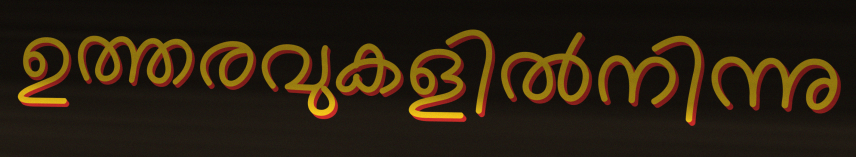
ഉത്തരവുകളിൽനിന്നു